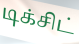
டிக்சிட்